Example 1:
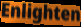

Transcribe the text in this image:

Enlighten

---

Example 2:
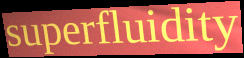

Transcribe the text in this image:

superfluidity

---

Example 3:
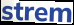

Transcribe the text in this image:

strem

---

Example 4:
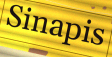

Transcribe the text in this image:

Sinapis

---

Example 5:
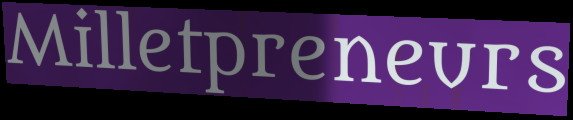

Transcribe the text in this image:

Milletpreneurs